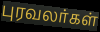
புரவலர்கள்